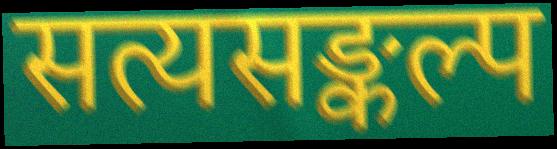
सत्यसङ्कल्प